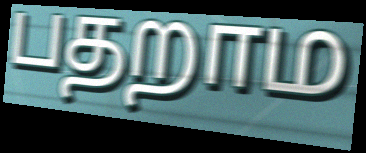
பதறாம